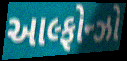
આલ્ફોન્ઝો